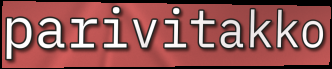
parivitakko